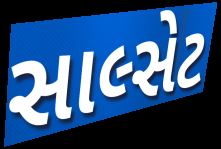
સાલ્સેટ